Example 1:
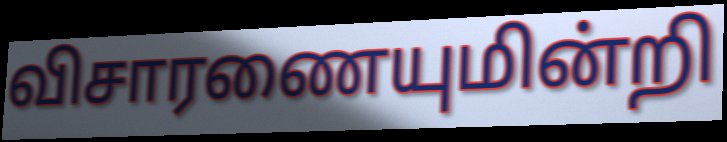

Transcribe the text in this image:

விசாரணையுமின்றி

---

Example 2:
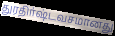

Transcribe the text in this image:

துரதிர்ஷ்டவசமானது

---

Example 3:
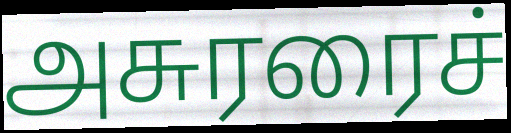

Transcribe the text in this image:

அசுரரைச்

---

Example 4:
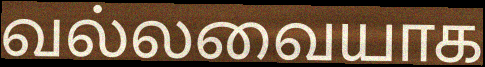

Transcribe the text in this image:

வல்லவையாக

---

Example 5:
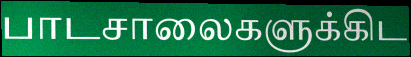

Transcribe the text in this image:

பாடசாலைகளுக்கிட